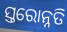
ସ୍ତରୋନ୍ନତି